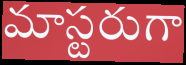
మాస్టరుగా